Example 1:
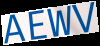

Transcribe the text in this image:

AEWV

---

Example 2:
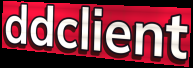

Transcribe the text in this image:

ddclient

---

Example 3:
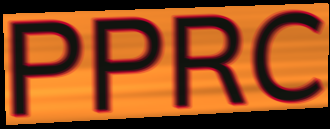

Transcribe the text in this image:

PPRC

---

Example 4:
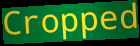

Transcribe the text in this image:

Cropped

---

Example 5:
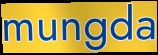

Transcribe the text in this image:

mungda